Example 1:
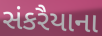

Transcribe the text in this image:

સંકરૈયાના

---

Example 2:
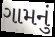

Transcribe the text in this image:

ગામનું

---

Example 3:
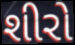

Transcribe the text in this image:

શીરો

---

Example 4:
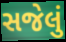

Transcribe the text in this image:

સજેલું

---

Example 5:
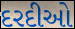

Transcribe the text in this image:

દરદીઓ